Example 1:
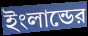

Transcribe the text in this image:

ইংলান্ডের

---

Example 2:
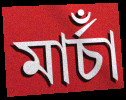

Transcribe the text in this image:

মার্চাঁ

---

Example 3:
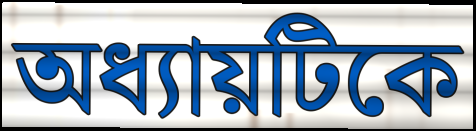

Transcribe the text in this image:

অধ্যায়টিকে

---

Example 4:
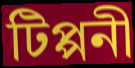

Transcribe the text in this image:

টিপ্পনী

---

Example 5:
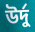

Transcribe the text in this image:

উর্দু